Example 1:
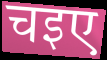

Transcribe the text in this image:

चइए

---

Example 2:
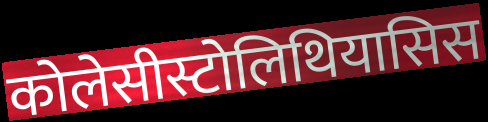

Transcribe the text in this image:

कोलेसीस्टोलिथियासिस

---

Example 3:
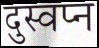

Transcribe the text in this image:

दुस्वप्न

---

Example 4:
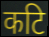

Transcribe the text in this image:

कटि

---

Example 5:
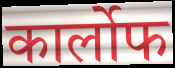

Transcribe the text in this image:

कार्लोफ